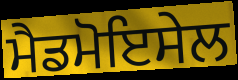
ਮੈਡਮੋਇਸੇਲ